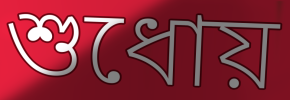
শুধোয়